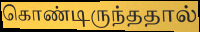
கொண்டிருந்ததால்